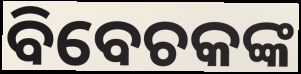
ବିବେଚକଙ୍କ